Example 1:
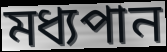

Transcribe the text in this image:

মধ্যপান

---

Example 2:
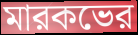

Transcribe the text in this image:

মারকভের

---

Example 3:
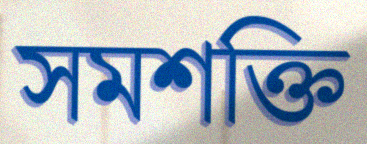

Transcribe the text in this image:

সমশক্তি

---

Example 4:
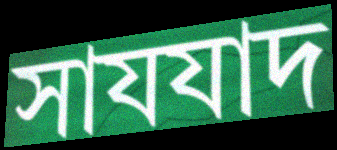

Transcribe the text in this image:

সাযযাদ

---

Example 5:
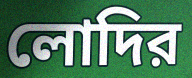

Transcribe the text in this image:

লোদির